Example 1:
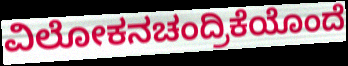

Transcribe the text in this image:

ವಿಲೋಕನಚಂದ್ರಿಕೆಯೊಂದೆ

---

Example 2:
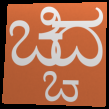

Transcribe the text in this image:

ಚ್ಚಿದ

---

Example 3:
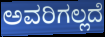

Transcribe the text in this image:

ಅವರಿಗಲ್ಲದೆ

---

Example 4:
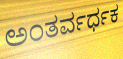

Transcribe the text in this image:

ಅಂತರ್ವರ್ಧಕ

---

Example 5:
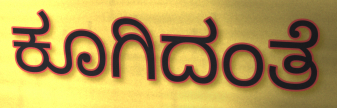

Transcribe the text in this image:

ಕೂಗಿದಂತೆ